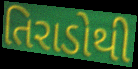
તિરાડોથી